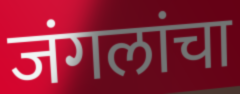
जंगलांचा